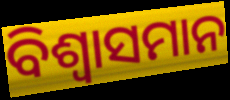
ବିଶ୍ଵାସମାନ